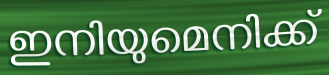
ഇനിയുമെനിക്ക്